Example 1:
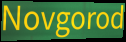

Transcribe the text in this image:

Novgorod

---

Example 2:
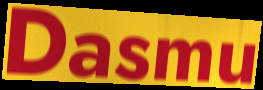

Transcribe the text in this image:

Dasmu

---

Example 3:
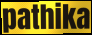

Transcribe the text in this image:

pathika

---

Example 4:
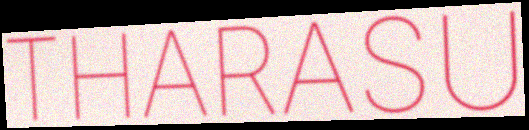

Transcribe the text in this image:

THARASU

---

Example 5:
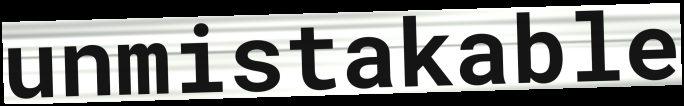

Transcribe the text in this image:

unmistakable